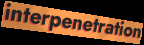
interpenetration